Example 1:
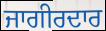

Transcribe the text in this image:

ਜਾਗੀਰਦਾਰ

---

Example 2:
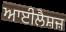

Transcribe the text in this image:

ਆਈਲੈਸ਼ਜ਼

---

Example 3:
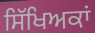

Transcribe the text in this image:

ਸਿੱਖਿਅਕਾਂ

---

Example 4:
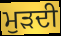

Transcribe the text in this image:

ਮੁੜਦੀ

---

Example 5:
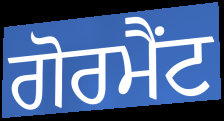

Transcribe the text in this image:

ਗੋਰਮੈਂਟ